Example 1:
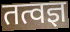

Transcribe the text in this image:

तत्वज्ञ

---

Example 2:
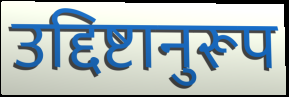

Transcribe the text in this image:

उद्दिष्टानुरूप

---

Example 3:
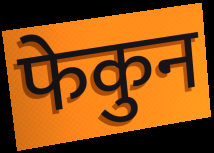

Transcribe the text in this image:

फेकुन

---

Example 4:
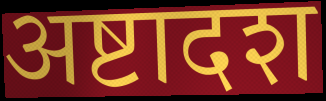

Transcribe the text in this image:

अष्टादश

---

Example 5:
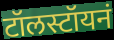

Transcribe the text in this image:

टॉलस्टॉयनं